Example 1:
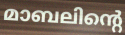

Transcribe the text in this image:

മാബലിന്റെ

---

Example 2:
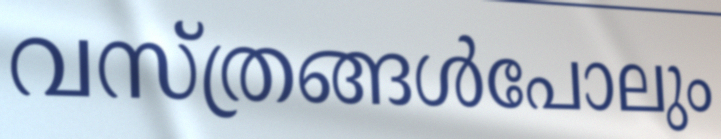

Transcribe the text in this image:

വസ്ത്രങ്ങൾപോലും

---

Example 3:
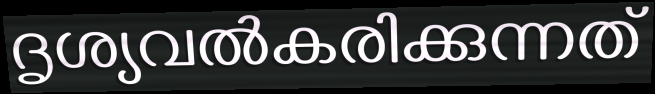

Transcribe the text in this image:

ദൃശ്യവൽകരിക്കുന്നത്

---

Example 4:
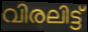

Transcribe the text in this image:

വിരലിട്ട്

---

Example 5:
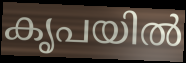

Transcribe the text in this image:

കൃപയിൽ